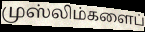
முஸ்லிம்களைப்